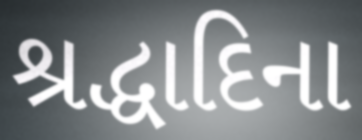
શ્રદ્ધાદિના